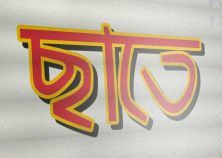
ছাতে